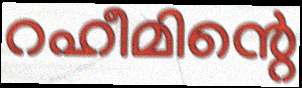
റഹീമിന്റെ